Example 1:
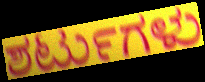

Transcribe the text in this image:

ಶರ್ಟುಗಳು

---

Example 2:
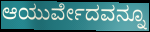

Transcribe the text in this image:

ಆಯುರ್ವೇದವನ್ನೂ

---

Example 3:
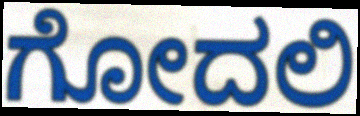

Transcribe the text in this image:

ಗೋದಲಿ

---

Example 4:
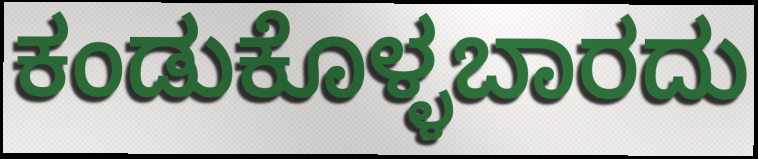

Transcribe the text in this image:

ಕಂಡುಕೊಳ್ಳಬಾರದು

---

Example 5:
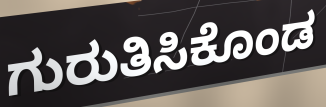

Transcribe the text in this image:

ಗುರುತಿಸಿಕೊಂಡ